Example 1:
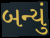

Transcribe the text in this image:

બન્યું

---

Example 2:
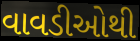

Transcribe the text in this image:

વાવડીઓથી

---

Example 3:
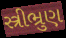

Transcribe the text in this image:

સ્ત્રીભ્રુણ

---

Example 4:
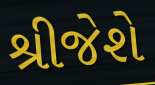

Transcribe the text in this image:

શ્રીજેશે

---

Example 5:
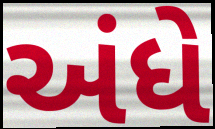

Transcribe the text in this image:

અંધે